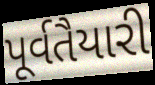
પૂર્વતૈયારી